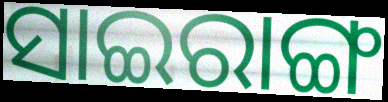
ସାଇରାଙ୍ଗ